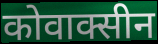
कोवाक्सीन